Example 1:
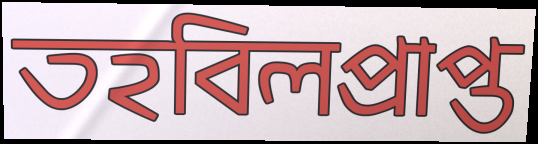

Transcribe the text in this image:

তহবিলপ্রাপ্ত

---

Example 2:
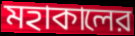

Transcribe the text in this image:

মহাকালের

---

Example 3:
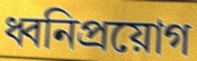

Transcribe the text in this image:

ধ্বনিপ্রয়োগ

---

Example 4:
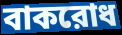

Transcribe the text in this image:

বাকরোধ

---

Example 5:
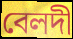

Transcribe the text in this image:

বেলদী